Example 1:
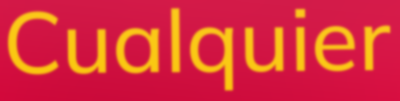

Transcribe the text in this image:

Cualquier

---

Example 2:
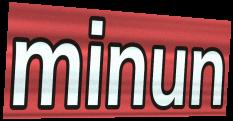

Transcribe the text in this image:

minun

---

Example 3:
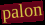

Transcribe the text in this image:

palon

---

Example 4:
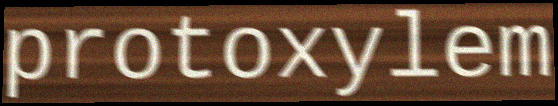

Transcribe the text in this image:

protoxylem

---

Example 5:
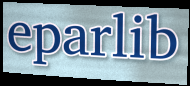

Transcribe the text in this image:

eparlib